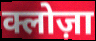
क्लोज़ा